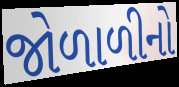
જોળાળીનો